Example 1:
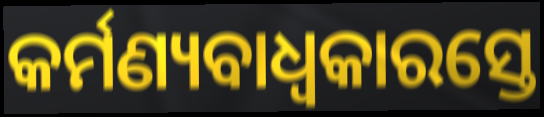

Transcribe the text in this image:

କର୍ମଣ୍ୟବାଧ୍ୱକାରସ୍ତେ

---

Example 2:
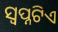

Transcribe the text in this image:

ସ୍ବପ୍ନଟିଏ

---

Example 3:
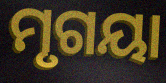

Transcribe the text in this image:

ମୃଗୟା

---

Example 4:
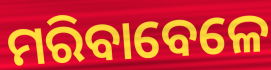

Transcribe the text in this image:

ମରିବାବେଳେ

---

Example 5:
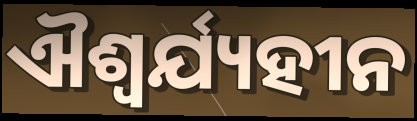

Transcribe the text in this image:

ଐଶ୍ଵର୍ଯ୍ୟହୀନ